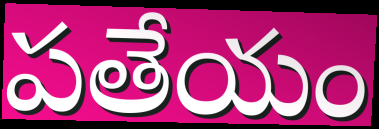
పతేయం